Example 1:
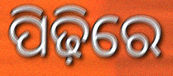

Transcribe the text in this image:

ପିଢ଼ିରେ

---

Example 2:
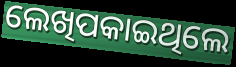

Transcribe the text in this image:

ଲେଖିପକାଇଥିଲେ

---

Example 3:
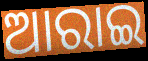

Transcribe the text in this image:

ଆରାଇ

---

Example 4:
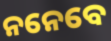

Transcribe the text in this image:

ନନେବେ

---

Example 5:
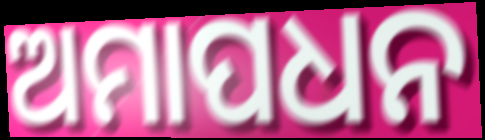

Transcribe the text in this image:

ଅମାପଧନ